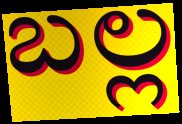
బల్ల